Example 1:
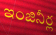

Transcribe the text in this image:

ఇంజినీర్ల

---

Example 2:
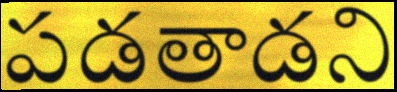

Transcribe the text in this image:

పడతాడని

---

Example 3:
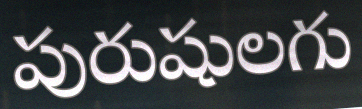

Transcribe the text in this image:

పురుషులగు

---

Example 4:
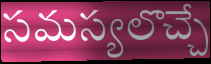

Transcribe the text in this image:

సమస్యలొచ్చే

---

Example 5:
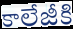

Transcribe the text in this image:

కాలేజీకి